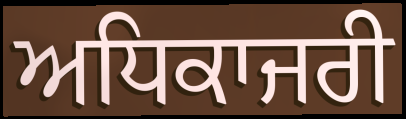
ਅਧਿਕਾਜਰੀ